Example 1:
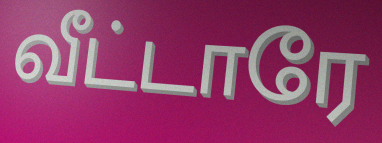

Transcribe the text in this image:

வீட்டாரே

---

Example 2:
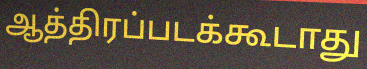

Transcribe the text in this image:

ஆத்திரப்படக்கூடாது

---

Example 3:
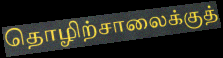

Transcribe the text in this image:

தொழிற்சாலைக்குத்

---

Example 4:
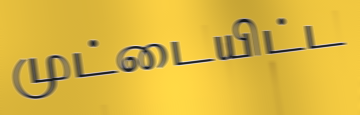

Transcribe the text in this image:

முட்டையிட்ட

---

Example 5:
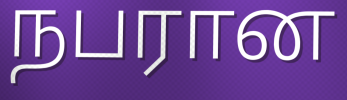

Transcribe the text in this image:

நபரான